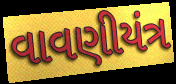
વાવણીયંત્ર